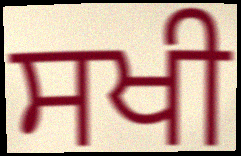
ਸਖੀ